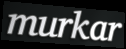
murkar